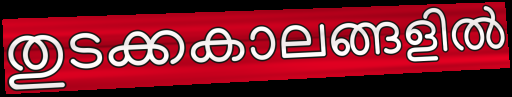
തുടക്കകാലങ്ങളിൽ